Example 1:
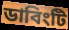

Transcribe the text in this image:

ডাবিংটি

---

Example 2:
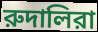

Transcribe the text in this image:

রুদালিরা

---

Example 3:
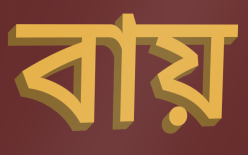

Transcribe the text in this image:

বায়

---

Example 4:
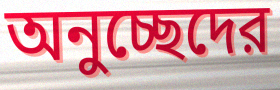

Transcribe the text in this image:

অনুচ্ছেদের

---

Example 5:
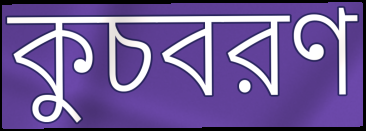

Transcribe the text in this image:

কুচবরণ